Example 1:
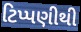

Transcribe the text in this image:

ટિપ્પણીથી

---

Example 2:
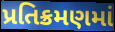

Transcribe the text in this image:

પ્રતિક્રમણમાં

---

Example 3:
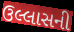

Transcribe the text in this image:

ઉલ્લાસની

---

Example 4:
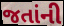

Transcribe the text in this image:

જતાંની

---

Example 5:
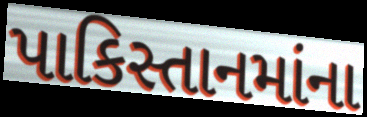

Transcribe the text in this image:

પાકિસ્તાનમાંના